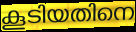
കൂടിയതിനെ